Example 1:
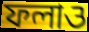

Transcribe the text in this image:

ফলাও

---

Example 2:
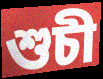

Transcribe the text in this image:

শুচী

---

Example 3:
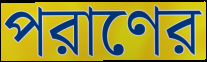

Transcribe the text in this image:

পরাণের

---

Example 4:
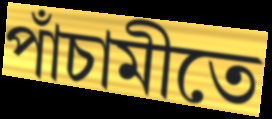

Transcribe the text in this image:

পাঁচামীতে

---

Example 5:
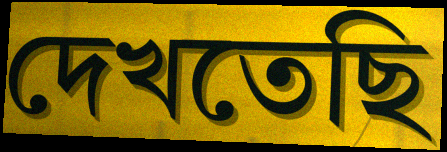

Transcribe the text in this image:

দেখতেছি